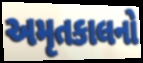
અમૃતકાલનો